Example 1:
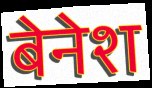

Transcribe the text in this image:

बेनेश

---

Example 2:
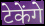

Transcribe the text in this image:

टेकेंगे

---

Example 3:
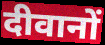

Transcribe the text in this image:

दीवानों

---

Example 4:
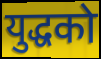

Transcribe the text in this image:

युद्धको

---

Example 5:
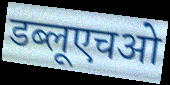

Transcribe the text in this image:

डब्लूएचओ